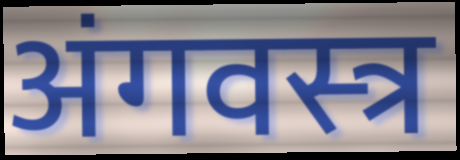
अंगवस्त्र